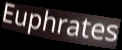
Euphrates